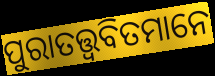
ପୁରାତତ୍ତ୍ୱବିତମାନେ